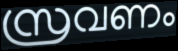
സ്രവണം